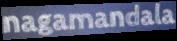
nagamandala